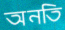
অনতি